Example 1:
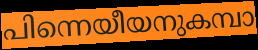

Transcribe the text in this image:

പിന്നെയീയനുകമ്പാ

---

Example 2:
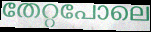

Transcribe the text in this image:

തേറ്റപോലെ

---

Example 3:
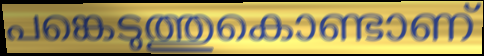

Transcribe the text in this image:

പങ്കെടുത്തുകൊണ്ടാണ്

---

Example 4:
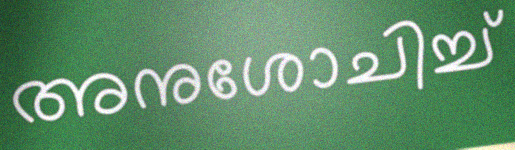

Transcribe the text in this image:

അനുശോചിച്ച്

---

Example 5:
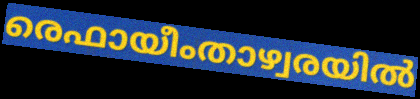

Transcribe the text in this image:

രെഫായീംതാഴ്വരയിൽ